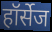
हॉर्सेज